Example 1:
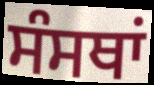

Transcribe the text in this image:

ਸੰਸਥਾਂ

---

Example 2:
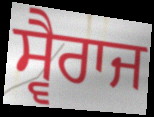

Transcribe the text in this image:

ਸ੍ਵੈਰਾਜ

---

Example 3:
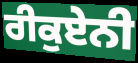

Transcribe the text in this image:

ਰੀਕੁਏਨੀ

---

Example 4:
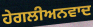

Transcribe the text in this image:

ਹੇਗਲੀਅਨਵਾਦ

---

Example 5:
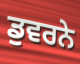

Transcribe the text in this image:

ਡੁਵਰਨੇ